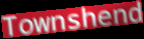
Townshend